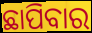
ଛାପିବାର